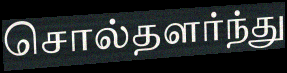
சொல்தளர்ந்து